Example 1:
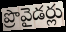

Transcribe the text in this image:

ప్రొవైడర్లు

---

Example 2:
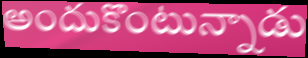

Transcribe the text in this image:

అందుకొంటున్నాడు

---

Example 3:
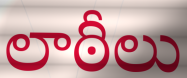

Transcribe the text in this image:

లాఠీలు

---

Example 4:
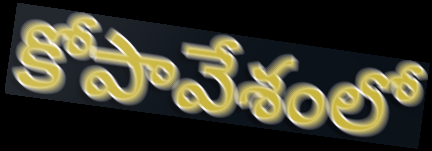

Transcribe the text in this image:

కోపావేశంలో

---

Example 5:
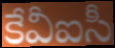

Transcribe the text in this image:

కేవీఐసీ